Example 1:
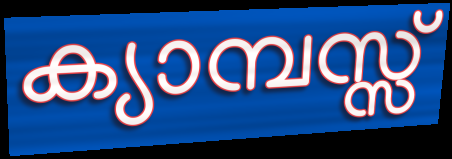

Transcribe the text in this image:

ക്യാമ്പസ്സ്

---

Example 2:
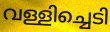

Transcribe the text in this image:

വള്ളിച്ചെടി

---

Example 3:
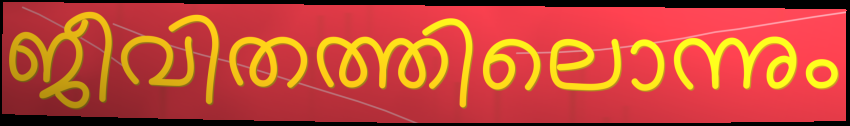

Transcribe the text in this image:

ജീവിതത്തിലൊന്നും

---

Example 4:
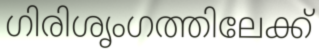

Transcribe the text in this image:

ഗിരിശൃംഗത്തിലേക്ക്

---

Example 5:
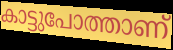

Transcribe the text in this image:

കാട്ടുപോത്താണ്